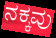
ನಕ್ಕವು